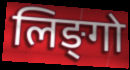
लिङ्गो